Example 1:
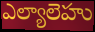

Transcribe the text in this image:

ఎల్యాలెహు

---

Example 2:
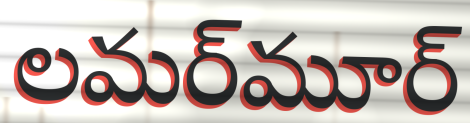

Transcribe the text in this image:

లమర్‌మూర్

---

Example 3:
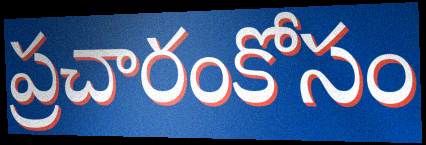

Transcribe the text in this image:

ప్రచారంకోసం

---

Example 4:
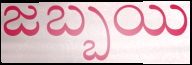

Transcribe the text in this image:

జబ్బయి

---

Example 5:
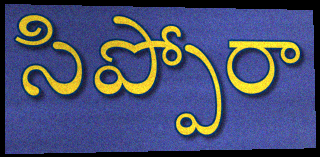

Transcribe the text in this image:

సిప్పోరా